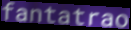
fantatrao